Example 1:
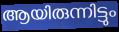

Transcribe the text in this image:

ആയിരുന്നിട്ടും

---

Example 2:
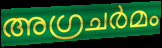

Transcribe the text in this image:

അഗ്രചർമം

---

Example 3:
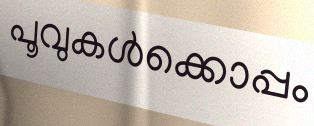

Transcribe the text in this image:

പൂവുകൾക്കൊപ്പം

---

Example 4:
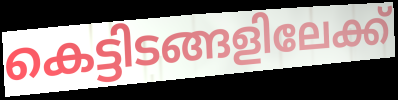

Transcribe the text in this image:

കെട്ടിടങ്ങളിലേക്ക്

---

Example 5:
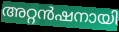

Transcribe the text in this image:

അറ്റൻഷനായി